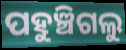
ପହୁଞ୍ଚିଗଲୁ